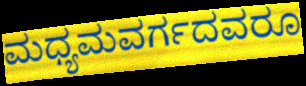
ಮಧ್ಯಮವರ್ಗದವರೂ